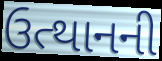
ઉત્થાનની